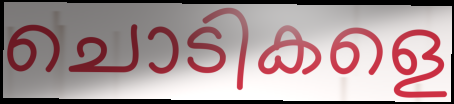
ചൊടികളെ